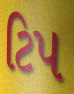
ટિપ